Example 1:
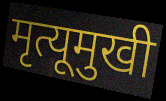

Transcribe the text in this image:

मृत्यूमुखी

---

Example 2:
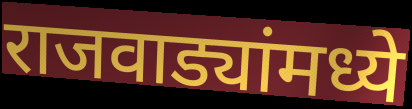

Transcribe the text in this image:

राजवाड्यांमध्ये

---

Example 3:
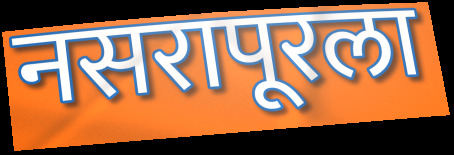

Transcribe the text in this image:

नसरापूरला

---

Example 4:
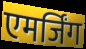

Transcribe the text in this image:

एमर्जिंग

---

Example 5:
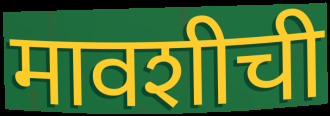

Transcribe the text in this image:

मावशीची